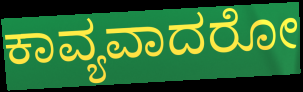
ಕಾವ್ಯವಾದರೋ